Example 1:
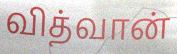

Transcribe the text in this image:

வித்வான்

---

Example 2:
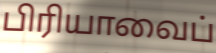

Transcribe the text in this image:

பிரியாவைப்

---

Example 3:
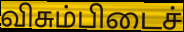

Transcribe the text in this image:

விசும்பிடைச்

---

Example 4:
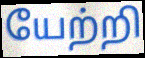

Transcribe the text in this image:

யேற்றி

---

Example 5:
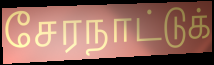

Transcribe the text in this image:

சேரநாட்டுக்